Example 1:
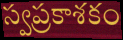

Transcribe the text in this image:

స్వప్రకాశకం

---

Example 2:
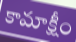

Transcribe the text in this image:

కామాక్షీం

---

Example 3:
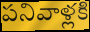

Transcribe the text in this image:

పనివాళ్లకి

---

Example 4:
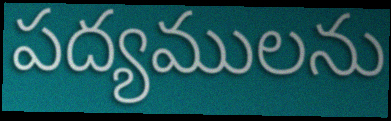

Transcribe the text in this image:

పద్యములను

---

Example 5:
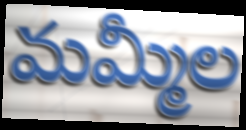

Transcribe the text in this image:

మమ్మీల